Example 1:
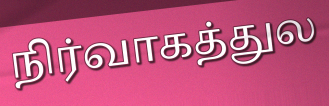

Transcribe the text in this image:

நிர்வாகத்துல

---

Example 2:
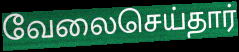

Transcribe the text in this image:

வேலைசெய்தார்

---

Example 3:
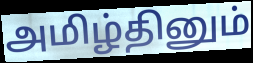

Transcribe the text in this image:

அமிழ்தினும்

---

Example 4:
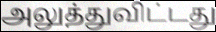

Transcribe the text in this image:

அலுத்துவிட்டது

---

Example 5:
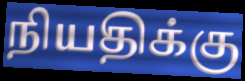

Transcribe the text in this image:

நியதிக்கு